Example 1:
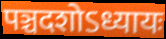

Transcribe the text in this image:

पञ्चदशोऽध्यायः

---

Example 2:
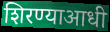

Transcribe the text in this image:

शिरण्याआधी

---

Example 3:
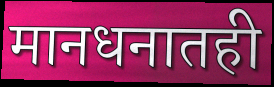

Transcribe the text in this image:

मानधनातही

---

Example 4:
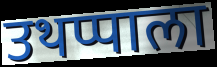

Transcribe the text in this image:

उथप्पाला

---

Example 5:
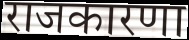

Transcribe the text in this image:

राजकारणा